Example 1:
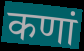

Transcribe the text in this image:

कणां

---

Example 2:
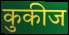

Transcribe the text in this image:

कुकीज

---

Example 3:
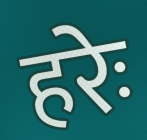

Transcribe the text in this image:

हरेः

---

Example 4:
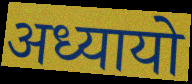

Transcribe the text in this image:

अध्यायो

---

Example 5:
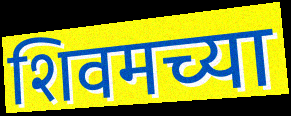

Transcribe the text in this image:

शिवमच्या